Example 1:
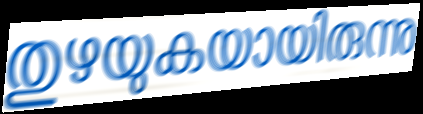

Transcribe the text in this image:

തുഴയുകയായിരുന്നു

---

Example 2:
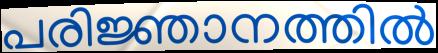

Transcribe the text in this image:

പരിജ്ഞാനത്തിൽ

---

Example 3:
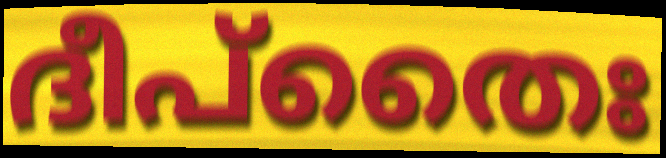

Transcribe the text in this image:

ദീപ്തൈഃ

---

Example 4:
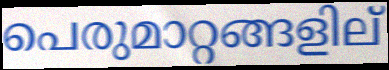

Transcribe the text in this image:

പെരുമാറ്റങ്ങളില്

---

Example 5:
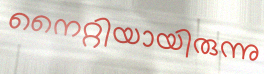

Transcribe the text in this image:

നൈറ്റിയായിരുന്നു